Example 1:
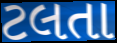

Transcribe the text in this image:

ટલતા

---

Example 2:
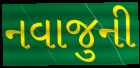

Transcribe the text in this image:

નવાજુની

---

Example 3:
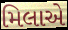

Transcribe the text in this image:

મિલાએ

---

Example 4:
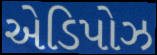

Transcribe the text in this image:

એડિપોઝ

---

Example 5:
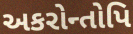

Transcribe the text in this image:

અકરોન્તોપિ